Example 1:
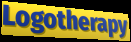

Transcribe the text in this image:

Logotherapy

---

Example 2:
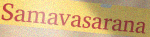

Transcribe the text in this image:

Samavasarana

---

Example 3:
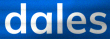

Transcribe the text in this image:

dales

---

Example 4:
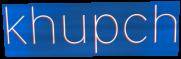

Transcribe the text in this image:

khupch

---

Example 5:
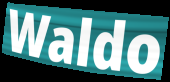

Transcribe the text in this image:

Waldo